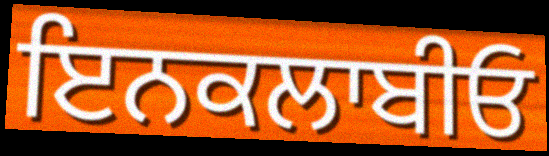
ਇਨਕਲਾਬੀਓ